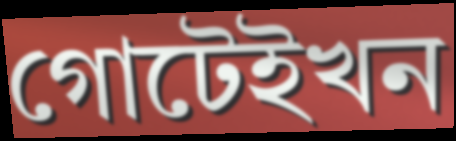
গোটেইখন